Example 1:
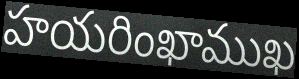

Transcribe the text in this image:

హయరింఖాముఖ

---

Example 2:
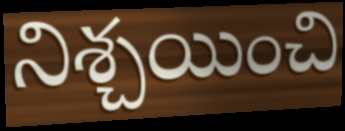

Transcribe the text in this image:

నిశ్చయించి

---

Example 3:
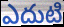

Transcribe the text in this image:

ఎదుటి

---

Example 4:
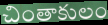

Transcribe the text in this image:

చింతాకులం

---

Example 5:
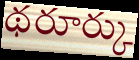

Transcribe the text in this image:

థరూర్కు